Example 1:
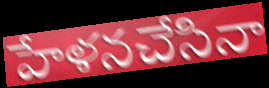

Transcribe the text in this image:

హేళనచేసినా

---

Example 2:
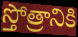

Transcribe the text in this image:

స్తోత్రానికి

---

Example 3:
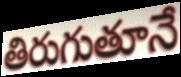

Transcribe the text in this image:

తిరుగుతూనే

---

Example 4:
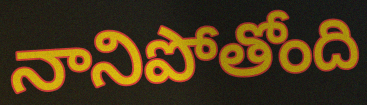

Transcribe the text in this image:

నానిపోతోంది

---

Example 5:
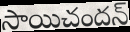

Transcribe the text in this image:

సాయిచందన్